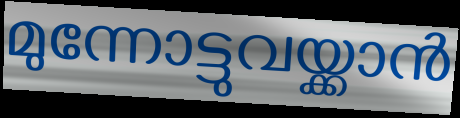
മുന്നോട്ടുവയ്ക്കാൻ